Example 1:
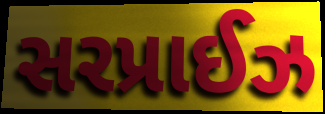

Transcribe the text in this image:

સરપ્રાઈઝ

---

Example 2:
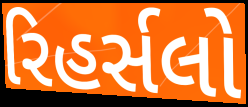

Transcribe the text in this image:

રિહર્સલો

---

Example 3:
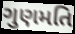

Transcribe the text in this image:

ગુણમતિ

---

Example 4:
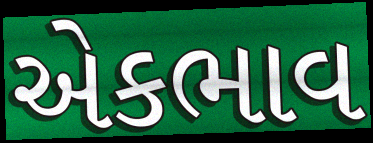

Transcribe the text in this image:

એકભાવ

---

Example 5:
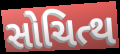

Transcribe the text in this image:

સોચિત્થ